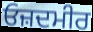
ਓਜ਼ਦਮੀਰ